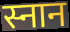
स्‍नान